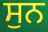
ਸੁਨ